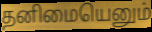
தனிமையெனும்